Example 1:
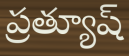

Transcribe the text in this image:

ప్రత్యూష్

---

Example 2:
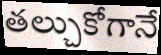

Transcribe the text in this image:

తల్చుకోగానే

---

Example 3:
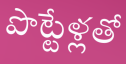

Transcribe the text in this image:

పొట్టేళ్లతో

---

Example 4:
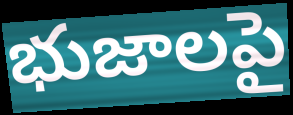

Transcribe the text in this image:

భుజాలపై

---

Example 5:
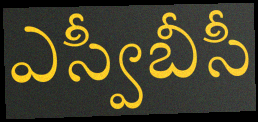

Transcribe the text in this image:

ఎస్వీబీసీ